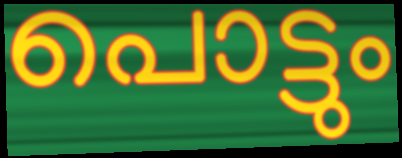
പൊട്ടും